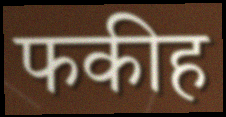
फकीह